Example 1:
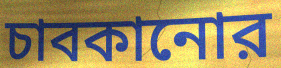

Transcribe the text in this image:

চাবকানোর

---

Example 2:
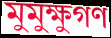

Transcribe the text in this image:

মুমুক্ষুগণ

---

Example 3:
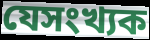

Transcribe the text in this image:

যেসংখ্যক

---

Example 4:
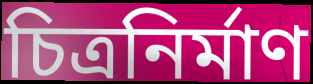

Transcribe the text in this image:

চিত্রনির্মাণ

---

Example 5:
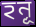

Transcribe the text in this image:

হনূ